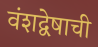
वंशद्वेषाची